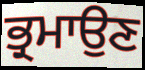
ਭ੍ਰਮਾਉਣ